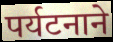
पर्यटनाने